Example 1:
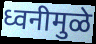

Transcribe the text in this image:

ध्वनीमुळे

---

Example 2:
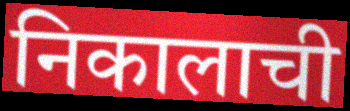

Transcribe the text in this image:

निकालाची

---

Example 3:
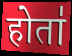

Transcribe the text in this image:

होता॑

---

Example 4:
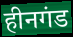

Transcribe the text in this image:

हीनगंड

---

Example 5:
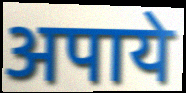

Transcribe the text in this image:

अपाये